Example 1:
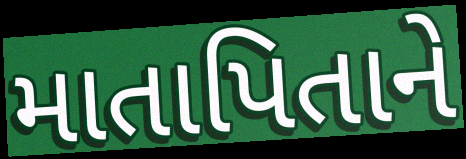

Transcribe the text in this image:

માતાપિતાને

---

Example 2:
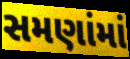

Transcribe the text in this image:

સમણાંમાં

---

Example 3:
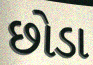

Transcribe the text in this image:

છોડા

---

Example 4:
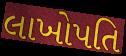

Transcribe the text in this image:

લાખોપતિ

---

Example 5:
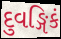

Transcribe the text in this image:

દુવઙ્ગિકં